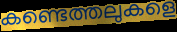
കണ്ടെത്തലുകളെ